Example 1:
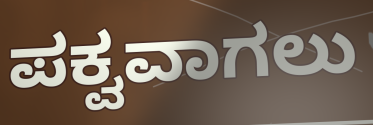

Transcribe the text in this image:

ಪಕ್ವವಾಗಲು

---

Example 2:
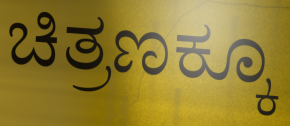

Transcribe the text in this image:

ಚಿತ್ರಣಕ್ಕೂ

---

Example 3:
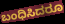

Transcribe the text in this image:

ಬಂಧಿಸಿದರೂ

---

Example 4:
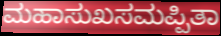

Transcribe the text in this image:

ಮಹಾಸುಖಸಮಪ್ಪಿತಾ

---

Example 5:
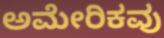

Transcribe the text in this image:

ಅಮೇರಿಕವು